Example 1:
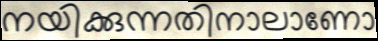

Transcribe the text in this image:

നയിക്കുന്നതിനാലാണോ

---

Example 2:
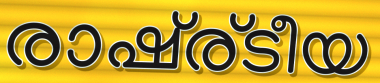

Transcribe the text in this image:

രാഷ്ര്ടീയ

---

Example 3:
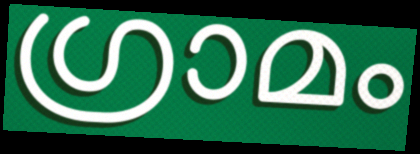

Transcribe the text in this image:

ഗ്രാമം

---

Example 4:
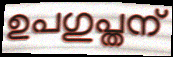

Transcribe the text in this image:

ഉപഗുപ്തന്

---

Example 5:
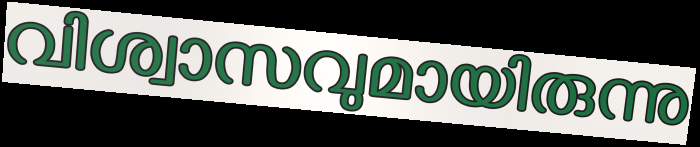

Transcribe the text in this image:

വിശ്വാസവുമായിരുന്നു